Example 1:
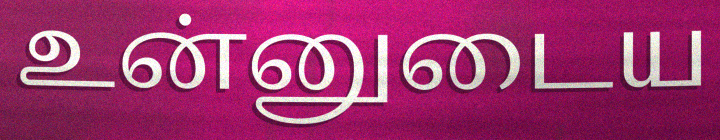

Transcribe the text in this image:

உன்னுடைய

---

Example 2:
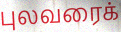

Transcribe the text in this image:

புலவரைக்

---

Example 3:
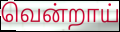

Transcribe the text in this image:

வென்றாய்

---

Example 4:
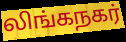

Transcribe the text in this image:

லிங்கநகர்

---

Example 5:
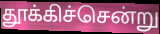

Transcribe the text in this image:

தூக்கிச்சென்று